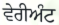
ਵੇਰੀਅੰਟ